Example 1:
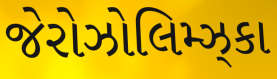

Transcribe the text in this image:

જેરોઝોલિમ્ઝ્કા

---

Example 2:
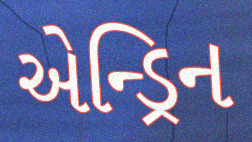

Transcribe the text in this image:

એન્ડ્રિન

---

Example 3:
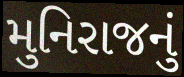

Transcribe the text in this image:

મુનિરાજનું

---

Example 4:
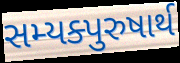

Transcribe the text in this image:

સમ્યક્પુરુષાર્થ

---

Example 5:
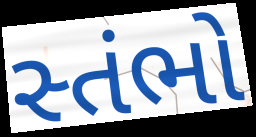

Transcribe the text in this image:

સ્તંભો